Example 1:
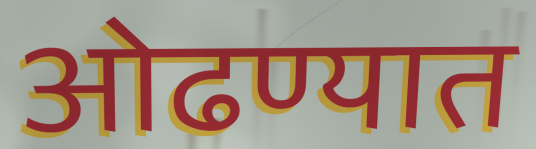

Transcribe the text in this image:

ओढण्यात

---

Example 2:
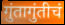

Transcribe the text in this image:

गुंतागुंतीचं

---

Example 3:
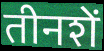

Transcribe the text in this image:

तीनशें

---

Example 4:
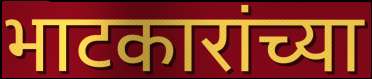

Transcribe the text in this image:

भाटकारांच्या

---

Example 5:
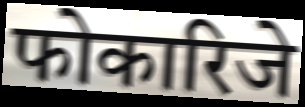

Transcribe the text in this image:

फोकारिजे